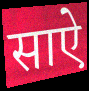
साऐ